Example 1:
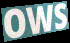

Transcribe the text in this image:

OWS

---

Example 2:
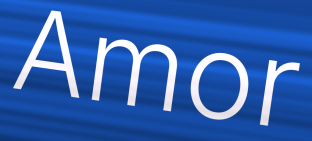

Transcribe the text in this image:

Amor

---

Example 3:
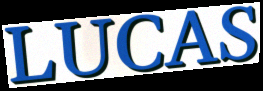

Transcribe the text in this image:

LUCAS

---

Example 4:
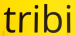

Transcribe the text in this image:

tribi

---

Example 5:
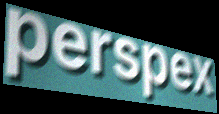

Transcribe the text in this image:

perspex